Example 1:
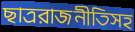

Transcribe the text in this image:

ছাত্ররাজনীতিসহ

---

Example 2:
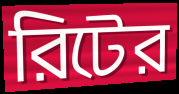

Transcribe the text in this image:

রিটের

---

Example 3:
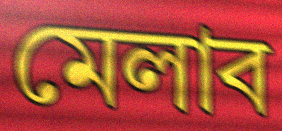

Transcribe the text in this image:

মেলাব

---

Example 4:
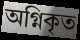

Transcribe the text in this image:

অগ্নিকৃত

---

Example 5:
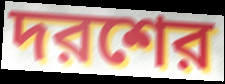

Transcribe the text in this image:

দরশের